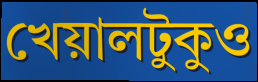
খেয়ালটুকুও